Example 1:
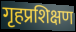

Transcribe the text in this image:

गृहप्रशिक्षण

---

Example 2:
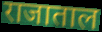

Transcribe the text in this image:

राजाताल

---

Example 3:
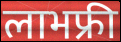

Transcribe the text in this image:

लाभफ्री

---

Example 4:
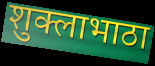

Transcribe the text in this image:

शुक्लाभाठा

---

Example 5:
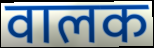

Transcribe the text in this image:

वालक